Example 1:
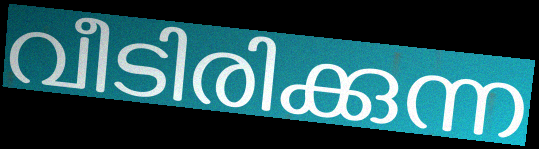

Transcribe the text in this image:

വീടിരിക്കുന്ന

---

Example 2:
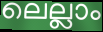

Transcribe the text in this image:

ലെല്ലാം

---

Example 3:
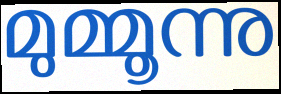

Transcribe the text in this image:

മുമ്മൂന്നു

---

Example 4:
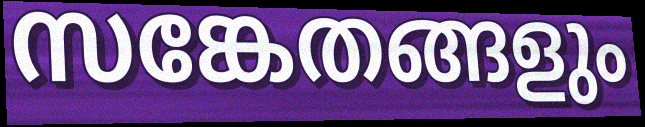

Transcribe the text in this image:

സങ്കേതങ്ങളും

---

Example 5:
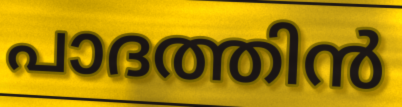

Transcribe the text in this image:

പാദത്തിൻ